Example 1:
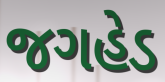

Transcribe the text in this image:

જગહેડ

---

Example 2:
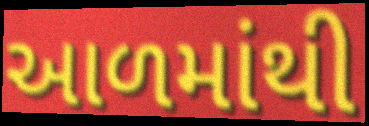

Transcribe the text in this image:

આળમાંથી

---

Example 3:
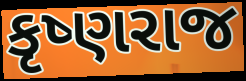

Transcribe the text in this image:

કૃષ્ણરાજ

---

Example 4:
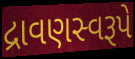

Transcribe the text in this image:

દ્રાવણસ્વરૂપે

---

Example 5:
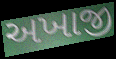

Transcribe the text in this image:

અખાજી